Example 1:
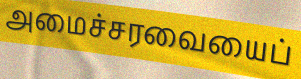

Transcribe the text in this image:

அமைச்சரவையைப்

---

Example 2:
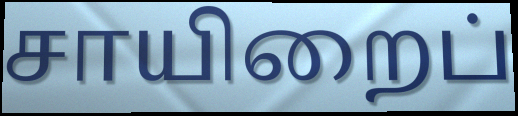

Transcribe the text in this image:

சாயிறைப்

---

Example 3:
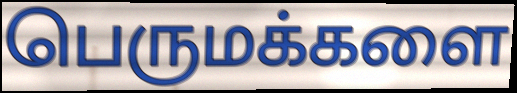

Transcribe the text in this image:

பெருமக்களை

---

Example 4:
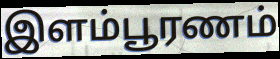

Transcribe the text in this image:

இளம்பூரணம்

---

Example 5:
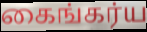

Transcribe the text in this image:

கைங்கர்ய